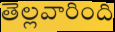
తెల్లవారింది